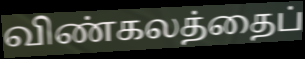
விண்கலத்தைப்